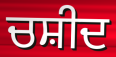
ਚਸ਼ੀਦ